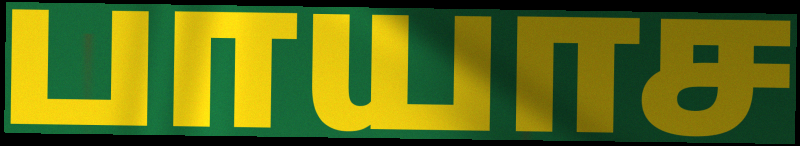
பாயாச